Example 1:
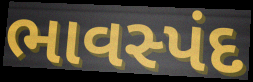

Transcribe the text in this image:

ભાવસ્પંદ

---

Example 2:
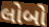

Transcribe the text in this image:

લોબો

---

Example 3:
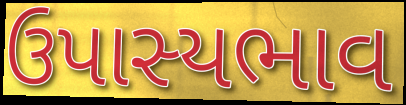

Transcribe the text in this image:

ઉપાસ્યભાવ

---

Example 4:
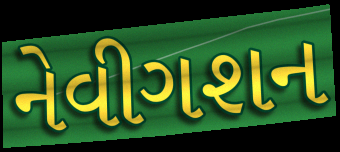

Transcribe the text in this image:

નેવીગશન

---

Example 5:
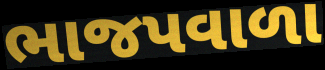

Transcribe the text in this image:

ભાજપવાળા